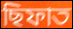
ছিফাত